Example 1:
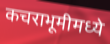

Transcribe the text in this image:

कचराभूमीमध्ये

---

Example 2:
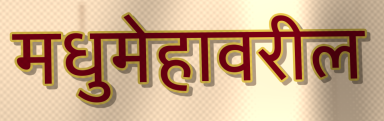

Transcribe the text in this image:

मधुमेहावरील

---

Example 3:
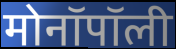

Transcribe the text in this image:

मोनॉपॉली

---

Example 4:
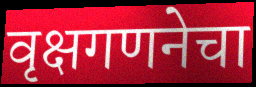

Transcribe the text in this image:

वृक्षगणनेचा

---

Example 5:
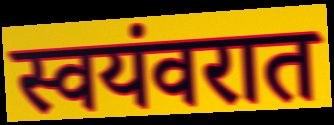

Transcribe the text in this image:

स्वयंवरात